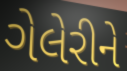
ગેલેરીને